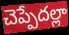
చెప్పేదల్లా